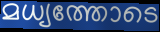
മധ്യത്തോടെ